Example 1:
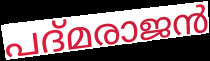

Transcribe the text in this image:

പദ്മരാജൻ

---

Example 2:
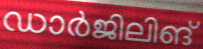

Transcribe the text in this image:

ഡാർജിലിങ്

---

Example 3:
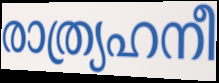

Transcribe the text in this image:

രാത്ര്യഹനീ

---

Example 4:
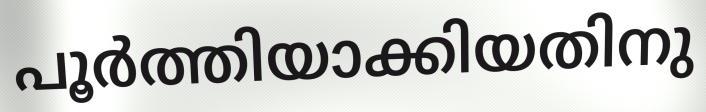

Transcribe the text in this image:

പൂർത്തിയാക്കിയതിനു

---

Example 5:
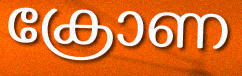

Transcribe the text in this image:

ക്രോണ